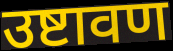
उष्टावण